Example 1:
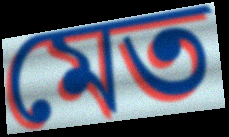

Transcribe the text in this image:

মেত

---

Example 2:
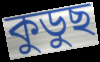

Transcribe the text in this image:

কুডুছ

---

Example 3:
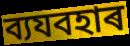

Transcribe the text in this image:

ব্যযবহাৰ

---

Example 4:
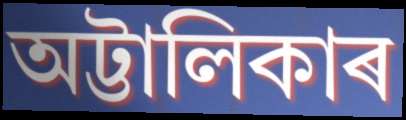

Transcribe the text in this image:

অট্টালিকাৰ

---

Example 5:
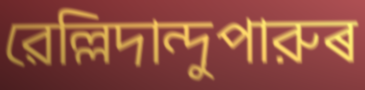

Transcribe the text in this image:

ৱেল্লিদান্দুপাৰুৰ